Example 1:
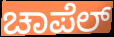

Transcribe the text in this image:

ಚಾಪೆಲ್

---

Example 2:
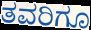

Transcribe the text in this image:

ತವರಿಗೂ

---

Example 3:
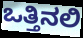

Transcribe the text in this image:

ಒತ್ತಿನಲಿ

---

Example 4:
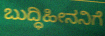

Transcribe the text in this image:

ಬುದ್ಧಿಹೀನನಿಗೆ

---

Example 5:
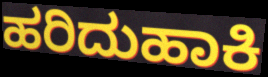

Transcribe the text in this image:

ಹರಿದುಹಾಕಿ